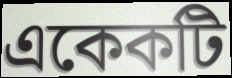
একেকটি